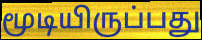
மூடியிருப்பது